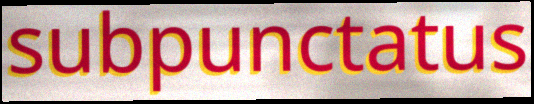
subpunctatus